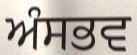
ਅੰਸਭਵ